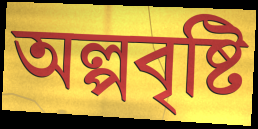
অল্পবৃষ্টি